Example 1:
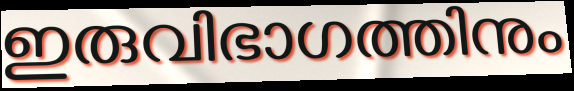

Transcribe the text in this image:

ഇരുവിഭാഗത്തിനും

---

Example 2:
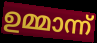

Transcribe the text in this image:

ഉമ്മാന്ന്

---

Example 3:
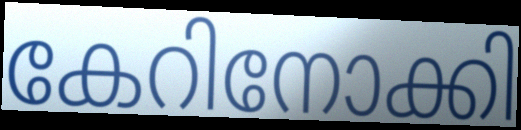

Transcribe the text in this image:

കേറിനോക്കി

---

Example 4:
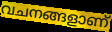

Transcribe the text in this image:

വചനങ്ങളാണ്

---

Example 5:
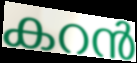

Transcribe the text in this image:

കറൻ